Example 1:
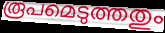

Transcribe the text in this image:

രൂപമെടുത്തതും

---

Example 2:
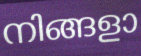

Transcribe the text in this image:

നിങ്ങളാ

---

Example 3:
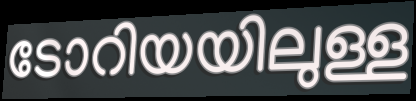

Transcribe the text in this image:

ടോറിയയിലുള്ള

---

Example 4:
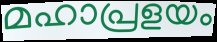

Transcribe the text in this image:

മഹാപ്രളയം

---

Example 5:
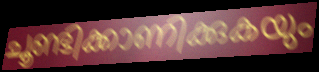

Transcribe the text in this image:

ചൂണ്ടിക്കാണിക്കുകയും